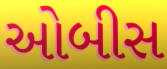
ઓબીસ